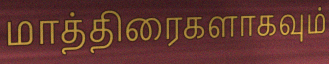
மாத்திரைகளாகவும்